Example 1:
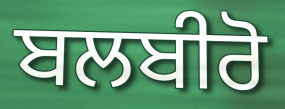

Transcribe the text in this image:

ਬਲਬੀਰੋ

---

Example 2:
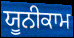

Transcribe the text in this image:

ਯੂਨੀਕਾਮ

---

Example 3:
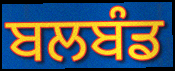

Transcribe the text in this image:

ਬਲਬੰਡ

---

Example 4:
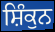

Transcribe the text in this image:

ਸ਼ਿੰਕੁਨ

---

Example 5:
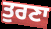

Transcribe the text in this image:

ਤੁਰਣਾ